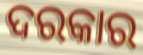
ଦରକାର